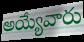
అయ్యేవారు